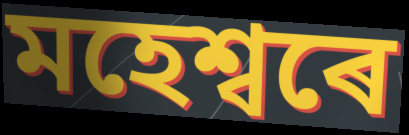
মহেশ্বৰে